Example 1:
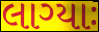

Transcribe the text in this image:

લાગ્યાઃ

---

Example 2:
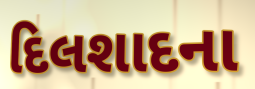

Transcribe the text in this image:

દિલશાદના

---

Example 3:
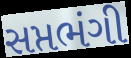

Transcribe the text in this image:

સપ્તભંગી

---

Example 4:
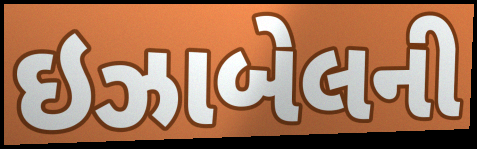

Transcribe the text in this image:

ઇઝાબેલની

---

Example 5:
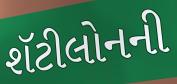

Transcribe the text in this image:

શૅટીલોનની